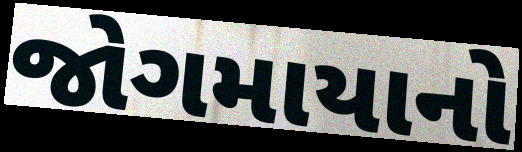
જોગમાયાનો